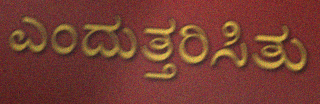
ಎಂದುತ್ತರಿಸಿತು